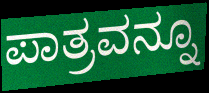
ಪಾತ್ರವನ್ನೂ